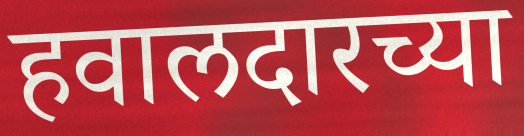
हवालदारच्या